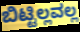
ಬಿಟ್ಟಿಲ್ಲವಲ್ಲ